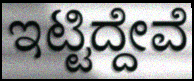
ಇಟ್ಟಿದ್ದೇವೆ